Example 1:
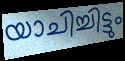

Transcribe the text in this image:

യാചിച്ചിട്ടും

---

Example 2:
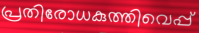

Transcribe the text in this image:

പ്രതിരോധകുത്തിവെപ്പ്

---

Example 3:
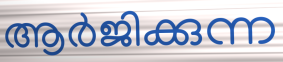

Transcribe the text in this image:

ആർജിക്കുന്ന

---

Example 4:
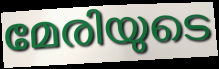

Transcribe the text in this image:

മേരിയുടെ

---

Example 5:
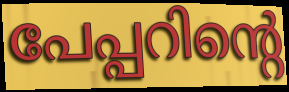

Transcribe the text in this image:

പേപ്പറിന്റെ